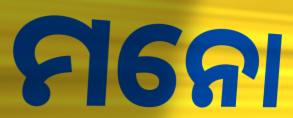
ମନୋ